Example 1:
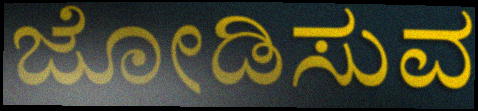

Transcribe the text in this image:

ಜೋಡಿಸುವ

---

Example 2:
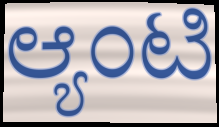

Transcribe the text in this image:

ಆ್ಯಂಟಿ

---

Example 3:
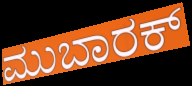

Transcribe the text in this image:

ಮುಬಾರಕ್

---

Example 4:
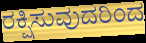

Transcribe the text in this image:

ರಕ್ಷಿಸುವುದರಿಂದ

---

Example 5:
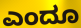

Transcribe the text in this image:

ಎಂದೂ